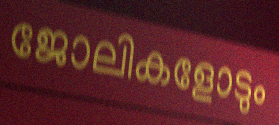
ജോലികളോടും